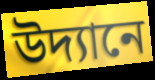
উদ্যানে